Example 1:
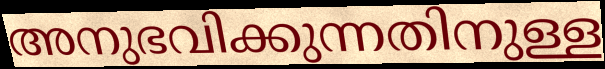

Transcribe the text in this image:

അനുഭവിക്കുന്നതിനുള്ള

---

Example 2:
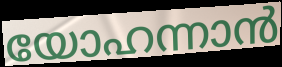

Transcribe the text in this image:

യോഹന്നാൻ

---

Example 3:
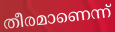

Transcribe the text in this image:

തീരമാണെന്ന്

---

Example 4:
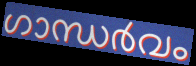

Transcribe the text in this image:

ഗാന്ധർവം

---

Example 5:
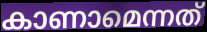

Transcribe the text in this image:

കാണാമെന്നത്